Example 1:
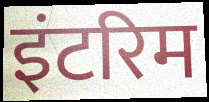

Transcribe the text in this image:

इंटरिम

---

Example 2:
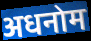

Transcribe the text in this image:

अधनोम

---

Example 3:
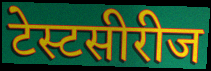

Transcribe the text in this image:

टेस्टसीरीज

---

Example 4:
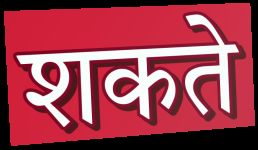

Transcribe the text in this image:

शकते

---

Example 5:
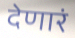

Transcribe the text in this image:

देणारं